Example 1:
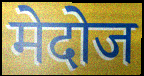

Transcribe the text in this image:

मेदोज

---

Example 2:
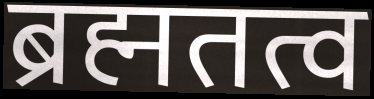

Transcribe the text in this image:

ब्रह्मतत्व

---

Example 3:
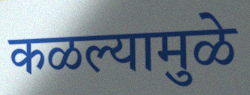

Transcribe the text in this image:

कळल्यामुळे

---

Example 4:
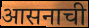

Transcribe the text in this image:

आसनाची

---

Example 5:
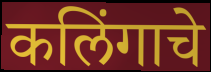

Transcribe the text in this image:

कलिंगाचे